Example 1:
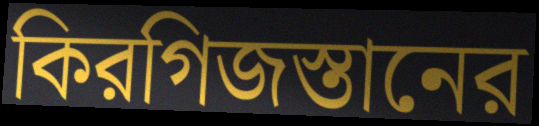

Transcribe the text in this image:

কিরগিজস্তানের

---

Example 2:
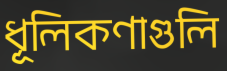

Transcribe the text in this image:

ধূলিকণাগুলি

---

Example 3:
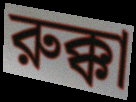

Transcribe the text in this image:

রুক্কা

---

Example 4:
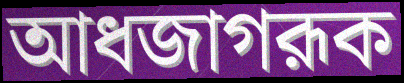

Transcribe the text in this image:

আধজাগরূক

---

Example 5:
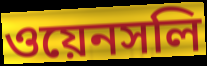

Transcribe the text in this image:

ওয়েনসলি